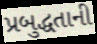
પ્રબુદ્ધતાની